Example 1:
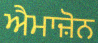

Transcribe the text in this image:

ਐਮਾਜ਼ੋਨ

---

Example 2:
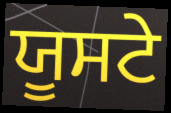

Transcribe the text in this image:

ਯੂਸਟੇ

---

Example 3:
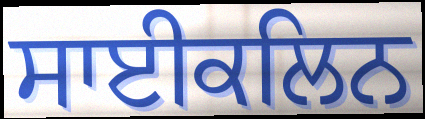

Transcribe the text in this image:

ਸਾਈਕਲਿਨ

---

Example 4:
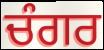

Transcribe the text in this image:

ਚੰਗਰ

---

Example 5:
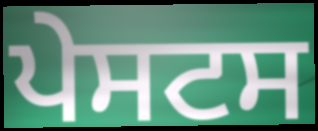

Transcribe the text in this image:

ਪੇਸਟਸ